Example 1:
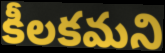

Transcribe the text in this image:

కీలకమని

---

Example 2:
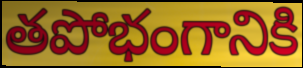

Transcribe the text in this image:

తపోభంగానికి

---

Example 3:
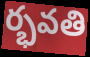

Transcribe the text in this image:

ర్భవతి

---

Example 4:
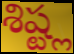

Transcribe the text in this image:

శిష్ట్ల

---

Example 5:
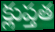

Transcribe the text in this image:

క్లుప్తత